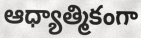
ఆధ్యాత్మికంగా